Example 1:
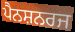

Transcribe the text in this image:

ਪੈਨਸ਼ਨਰਜ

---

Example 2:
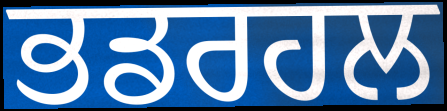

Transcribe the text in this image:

ਭਡਰਹਲ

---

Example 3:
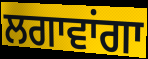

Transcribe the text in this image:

ਲਗਾਵਾਂਗਾ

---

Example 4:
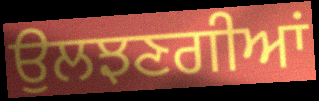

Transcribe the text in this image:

ਉਲਝਣਗੀਆਂ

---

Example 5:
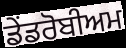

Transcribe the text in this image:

ਡੇਂਡਰੋਬੀਅਮ